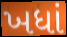
ખધાં